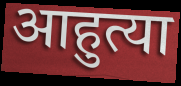
आहुत्या